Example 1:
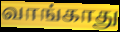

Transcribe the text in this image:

வாங்காது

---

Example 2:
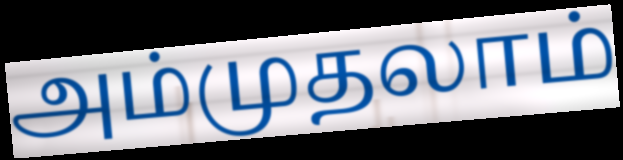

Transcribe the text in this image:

அம்முதலாம்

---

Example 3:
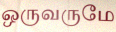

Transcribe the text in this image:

ஒருவருமே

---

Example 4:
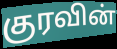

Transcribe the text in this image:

குரவின்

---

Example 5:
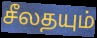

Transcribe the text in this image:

சீலதயும்